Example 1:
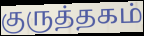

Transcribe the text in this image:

குருத்தகம்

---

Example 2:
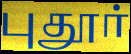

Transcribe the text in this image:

புதூர்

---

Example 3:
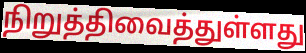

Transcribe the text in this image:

நிறுத்திவைத்துள்ளது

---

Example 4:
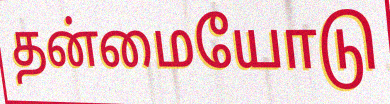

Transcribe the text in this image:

தன்மையோடு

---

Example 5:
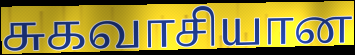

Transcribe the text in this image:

சுகவாசியான